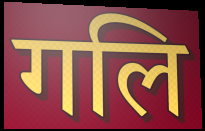
गलि